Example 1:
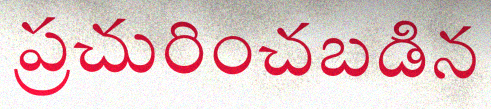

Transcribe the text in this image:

ప్రచురించబడిన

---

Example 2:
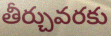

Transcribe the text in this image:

తీర్చువరకు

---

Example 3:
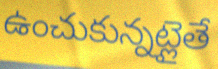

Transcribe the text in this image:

ఉంచుకున్నట్లైతే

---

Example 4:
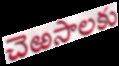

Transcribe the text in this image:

చెఱసాలకు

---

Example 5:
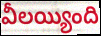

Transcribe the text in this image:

వీలయ్యింది